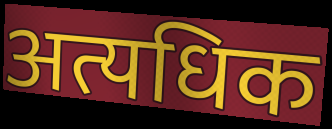
अत्‍यधिक